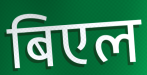
बिएल